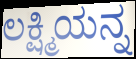
ಲಕ್ಷ್ಮಿಯನ್ನ